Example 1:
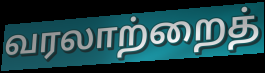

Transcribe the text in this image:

வரலாற்றைத்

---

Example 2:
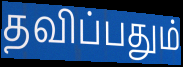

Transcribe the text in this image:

தவிப்பதும்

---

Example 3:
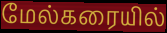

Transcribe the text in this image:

மேல்கரையில்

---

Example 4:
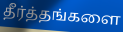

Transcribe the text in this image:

தீர்த்தங்களை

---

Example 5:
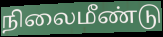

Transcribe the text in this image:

நிலைமீண்டு